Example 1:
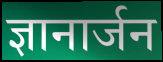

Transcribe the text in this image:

ज्ञानार्जन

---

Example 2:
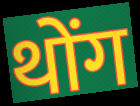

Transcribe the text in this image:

थोंग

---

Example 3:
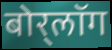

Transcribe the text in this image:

बोर्‌लॉग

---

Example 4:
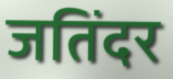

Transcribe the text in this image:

जतिंदर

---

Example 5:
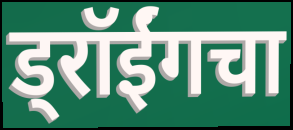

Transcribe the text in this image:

ड्रॉईंगचा